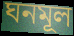
ঘনমূল